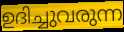
ഉദിച്ചുവരുന്ന